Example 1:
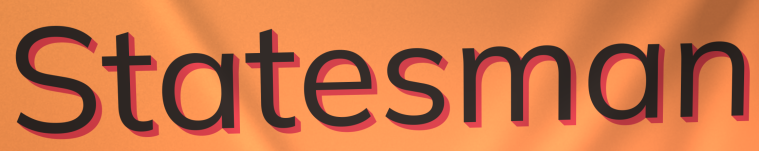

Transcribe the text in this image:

Statesman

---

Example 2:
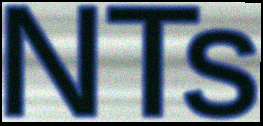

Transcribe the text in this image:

NTs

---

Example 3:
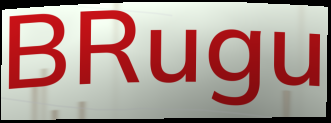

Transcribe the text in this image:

BRugu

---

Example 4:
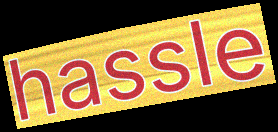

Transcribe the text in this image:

hassle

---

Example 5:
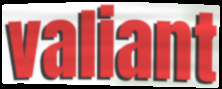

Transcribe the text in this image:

valiant